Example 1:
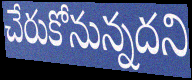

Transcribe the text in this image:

చేరుకోనున్నదని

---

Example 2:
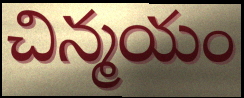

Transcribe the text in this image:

చిన్మయం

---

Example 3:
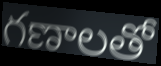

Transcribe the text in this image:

గణాలతో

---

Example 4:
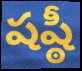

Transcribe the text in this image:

షష్ఠీ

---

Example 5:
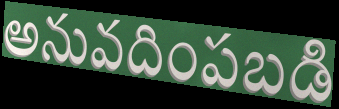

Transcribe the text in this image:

అనువదింపబడి